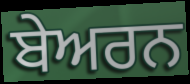
ਬੇਅਰਨ